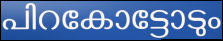
പിറകോട്ടോടും